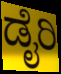
ಡೈರಿ